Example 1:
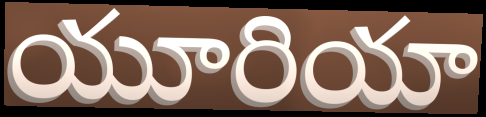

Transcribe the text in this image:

యూరియా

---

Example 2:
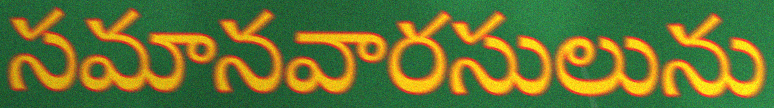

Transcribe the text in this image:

సమానవారసులును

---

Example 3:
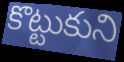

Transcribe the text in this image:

కొట్టుకుని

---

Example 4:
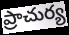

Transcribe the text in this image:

ప్రాచుర్య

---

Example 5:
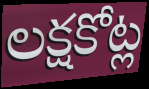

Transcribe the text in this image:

లక్షకోట్ల